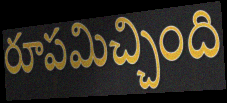
రూపమిచ్చింది